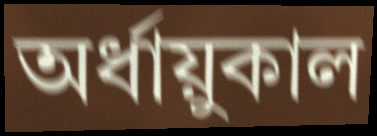
অর্ধায়ুকাল